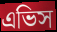
এভিস